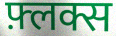
फ़्लक्स